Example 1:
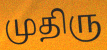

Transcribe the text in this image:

முதிரு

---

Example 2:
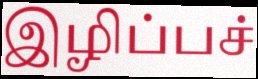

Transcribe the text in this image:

இழிப்பச்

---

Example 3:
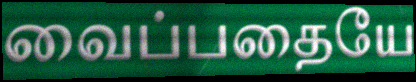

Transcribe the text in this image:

வைப்பதையே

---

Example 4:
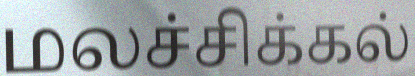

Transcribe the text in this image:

மலச்சிக்கல்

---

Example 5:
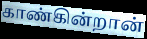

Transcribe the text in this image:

காண்கின்றான்